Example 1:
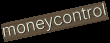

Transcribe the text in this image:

moneycontrol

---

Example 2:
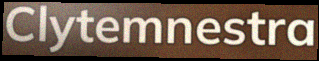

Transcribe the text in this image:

Clytemnestra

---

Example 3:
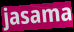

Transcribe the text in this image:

jasama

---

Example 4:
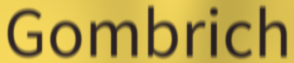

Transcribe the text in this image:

Gombrich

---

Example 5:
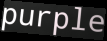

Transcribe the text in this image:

purple